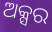
ଅକ୍ସର